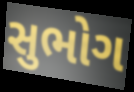
સુભોગ